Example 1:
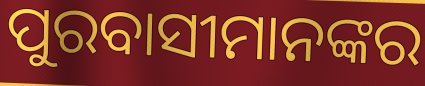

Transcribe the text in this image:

ପୁରବାସୀମାନଙ୍କର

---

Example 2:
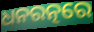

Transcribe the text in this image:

ଧନରତ୍ନରେ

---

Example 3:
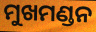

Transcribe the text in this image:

ମୁଖମଣ୍ଡନ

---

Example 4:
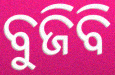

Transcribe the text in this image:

ବୁଜିବି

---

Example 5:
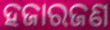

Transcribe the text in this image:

ହଜାରଜଣ